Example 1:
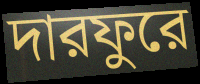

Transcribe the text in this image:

দারফুরে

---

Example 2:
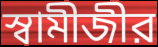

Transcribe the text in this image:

স্বামীজীর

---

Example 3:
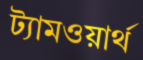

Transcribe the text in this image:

ট্যামওয়ার্থ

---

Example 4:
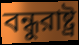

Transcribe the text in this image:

বন্ধুরাষ্ট্র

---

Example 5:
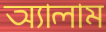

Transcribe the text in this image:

অ্যালাম